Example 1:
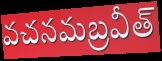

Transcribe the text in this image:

వచనమబ్రవీత్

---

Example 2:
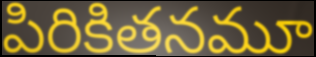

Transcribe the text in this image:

పిరికితనమూ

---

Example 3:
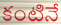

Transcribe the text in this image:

కంటినే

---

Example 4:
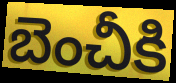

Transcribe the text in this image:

బెంచీకి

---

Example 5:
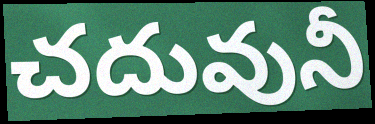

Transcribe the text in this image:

చదువునీ